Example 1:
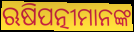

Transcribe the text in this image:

ଋଷିପତ୍ନୀମାନଙ୍କ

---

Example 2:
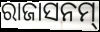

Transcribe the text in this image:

ରାଜାସନମ୍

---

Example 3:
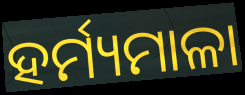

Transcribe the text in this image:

ହର୍ମ୍ୟମାଳା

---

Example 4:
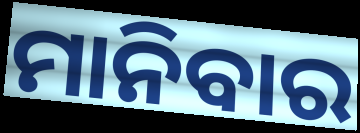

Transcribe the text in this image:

ମାନିବାର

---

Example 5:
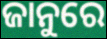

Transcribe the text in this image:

ଜାନୁରେ